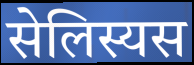
सेलिस्यस